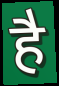
है